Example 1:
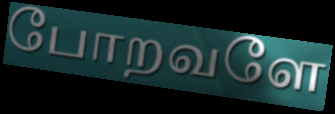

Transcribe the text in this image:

போறவளே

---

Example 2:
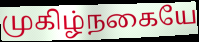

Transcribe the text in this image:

முகிழ்நகையே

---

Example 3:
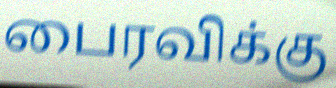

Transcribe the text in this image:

பைரவிக்கு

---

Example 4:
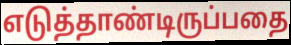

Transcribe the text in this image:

எடுத்தாண்டிருப்பதை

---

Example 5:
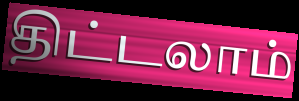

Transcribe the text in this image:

திட்டலாம்